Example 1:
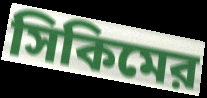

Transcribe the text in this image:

সিকিমের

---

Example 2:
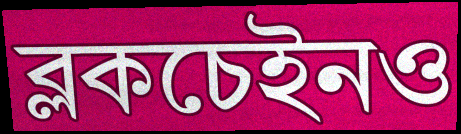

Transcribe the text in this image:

ব্লকচেইনও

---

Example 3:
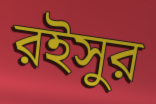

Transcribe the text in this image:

রইসুর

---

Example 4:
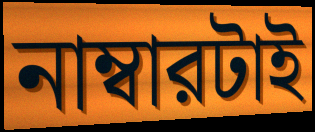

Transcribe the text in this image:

নাম্বারটাই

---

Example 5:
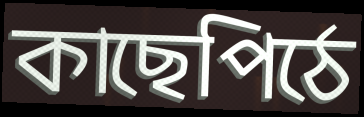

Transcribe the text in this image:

কাছেপিঠে